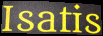
Isatis